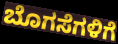
ಬೊಗಸೆಗಳಿಗೆ